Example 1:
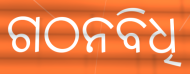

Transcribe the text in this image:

ଗଠନବିଧି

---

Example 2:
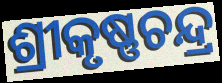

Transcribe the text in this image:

ଶ୍ରୀକୃଷ୍ଣଚନ୍ଦ୍ର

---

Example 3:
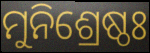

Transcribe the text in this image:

ମୁନିଶ୍ରେଷ୍ଠଃ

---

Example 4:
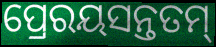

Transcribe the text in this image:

ପ୍ରେରୟସନ୍ତତମ୍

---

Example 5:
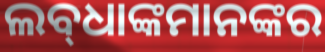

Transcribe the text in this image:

ଲବ୍‌ଧାଙ୍କମାନଙ୍କର